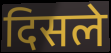
दिसले